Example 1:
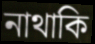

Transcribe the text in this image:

নাথাকি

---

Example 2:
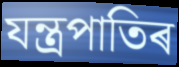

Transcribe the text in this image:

যন্ত্ৰপাতিৰ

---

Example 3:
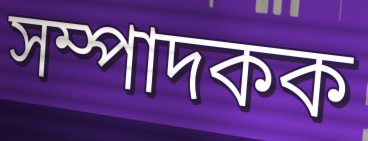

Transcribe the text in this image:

সম্পাদকক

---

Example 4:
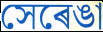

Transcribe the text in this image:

সেৰেঙা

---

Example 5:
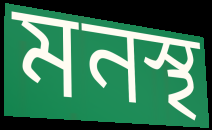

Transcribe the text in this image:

মনস্থ